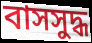
বাসসুদ্ধ